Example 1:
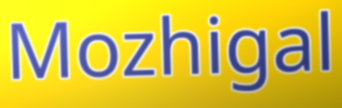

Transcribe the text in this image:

Mozhigal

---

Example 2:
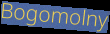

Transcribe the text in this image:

Bogomolny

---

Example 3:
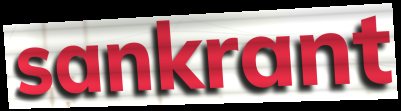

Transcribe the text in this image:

sankrant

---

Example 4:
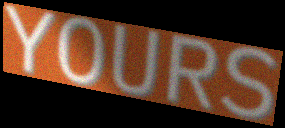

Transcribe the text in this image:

YOURS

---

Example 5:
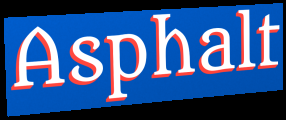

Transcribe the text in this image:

Asphalt